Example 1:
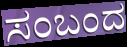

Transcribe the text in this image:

ಸಂಬಂದ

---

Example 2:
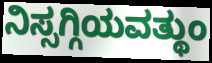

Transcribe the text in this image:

ನಿಸ್ಸಗ್ಗಿಯವತ್ಥುಂ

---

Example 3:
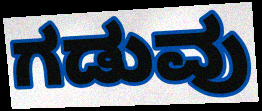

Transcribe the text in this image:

ಗಡುವು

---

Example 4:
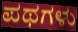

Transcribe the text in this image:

ಪಥಗಳು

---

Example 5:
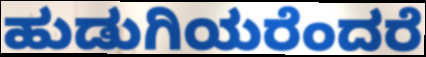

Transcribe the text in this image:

ಹುಡುಗಿಯರೆಂದರೆ